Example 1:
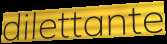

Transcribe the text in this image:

dilettante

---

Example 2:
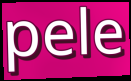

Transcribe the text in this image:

pele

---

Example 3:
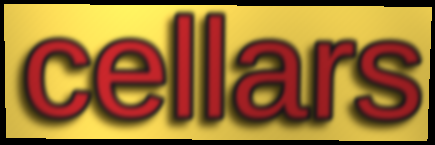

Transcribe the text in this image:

cellars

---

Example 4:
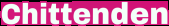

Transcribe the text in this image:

Chittenden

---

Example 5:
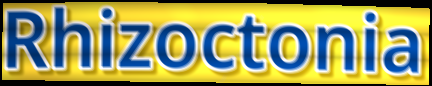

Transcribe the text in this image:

Rhizoctonia